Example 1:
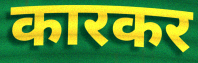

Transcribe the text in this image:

कारकर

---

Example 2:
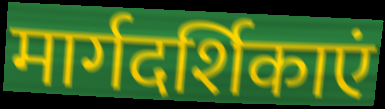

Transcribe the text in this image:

मार्गदर्शिकाएं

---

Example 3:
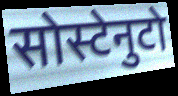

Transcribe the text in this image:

सोस्टेनुटो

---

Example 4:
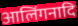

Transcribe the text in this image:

आलिंगनादि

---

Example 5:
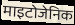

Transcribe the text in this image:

माइटोजेनिक